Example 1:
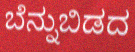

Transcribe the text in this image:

ಬೆನ್ನುಬಿಡದ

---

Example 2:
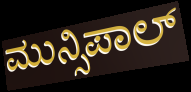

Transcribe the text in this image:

ಮುನ್ಸಿಪಾಲ್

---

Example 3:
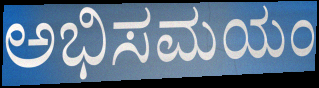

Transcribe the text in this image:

ಅಭಿಸಮಯಂ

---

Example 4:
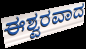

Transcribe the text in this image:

ಈಶ್ವರವಾದ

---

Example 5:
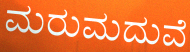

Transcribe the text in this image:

ಮರುಮದುವೆ